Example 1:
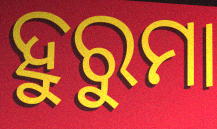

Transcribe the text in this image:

ହୁରୁମା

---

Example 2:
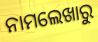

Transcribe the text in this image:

ନାମଲେଖାରୁ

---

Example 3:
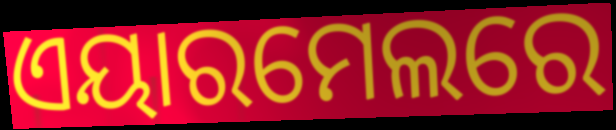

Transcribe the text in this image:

ଏୟାରମେଲରେ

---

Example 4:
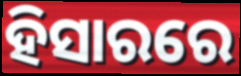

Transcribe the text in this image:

ହିସାରରେ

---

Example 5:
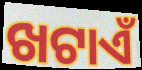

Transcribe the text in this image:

ଖଟାଏଁ